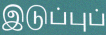
இடுப்புப்